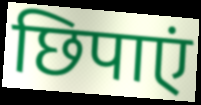
छिपाएं